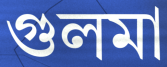
গুলমা